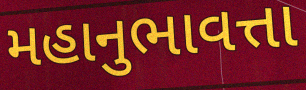
મહાનુભાવત્તા